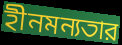
হীনমন্যতার